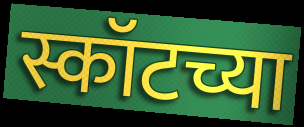
स्कॉटच्या